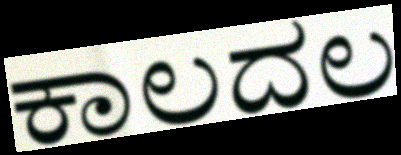
ಕಾಲದಲ